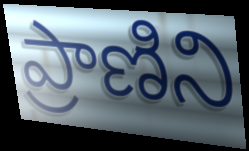
ప్రాణిని